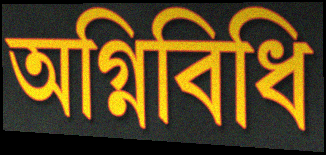
অগ্নিবিধি